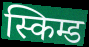
स्किम्ड